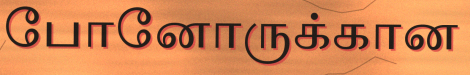
போனோருக்கான